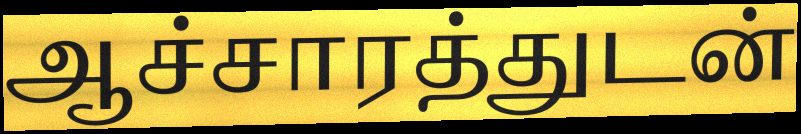
ஆச்சாரத்துடன்